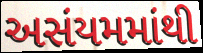
અસંયમમાંથી